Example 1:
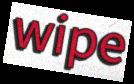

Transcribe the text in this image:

wipe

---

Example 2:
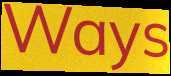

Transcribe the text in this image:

Ways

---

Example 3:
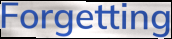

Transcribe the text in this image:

Forgetting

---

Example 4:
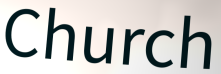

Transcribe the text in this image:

Church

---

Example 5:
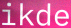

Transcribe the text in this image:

ikde